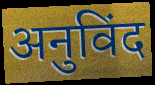
अनुविंद